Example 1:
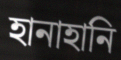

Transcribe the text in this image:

হানাহানি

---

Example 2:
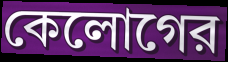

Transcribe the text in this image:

কেলোগের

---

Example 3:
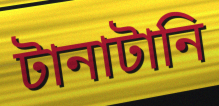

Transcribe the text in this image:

টানাটানি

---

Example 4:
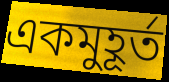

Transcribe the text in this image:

একমুহূর্ত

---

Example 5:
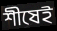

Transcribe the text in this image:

শীষেই